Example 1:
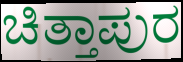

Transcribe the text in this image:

ಚಿತ್ತಾಪುರ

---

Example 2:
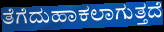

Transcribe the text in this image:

ತೆಗೆದುಹಾಕಲಾಗುತ್ತದೆ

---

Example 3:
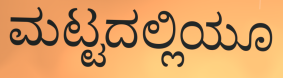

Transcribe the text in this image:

ಮಟ್ಟದಲ್ಲಿಯೂ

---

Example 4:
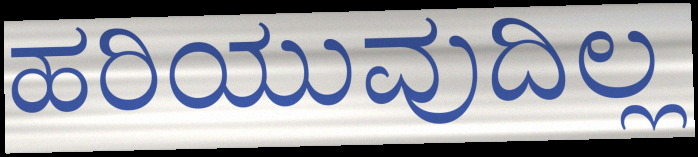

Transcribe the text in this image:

ಹರಿಯುವುದಿಲ್ಲ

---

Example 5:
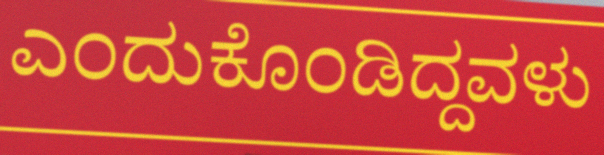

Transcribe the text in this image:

ಎಂದುಕೊಂಡಿದ್ದವಳು